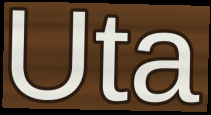
Uta